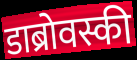
डाब्रोवस्की